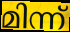
മിന്ന്